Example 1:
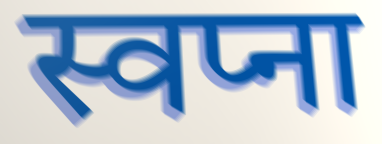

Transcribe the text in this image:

स्‍वप्‍ना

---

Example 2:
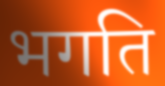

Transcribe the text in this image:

भगति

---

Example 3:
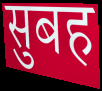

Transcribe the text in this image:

सुबह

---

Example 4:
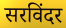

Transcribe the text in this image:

सरविंदर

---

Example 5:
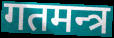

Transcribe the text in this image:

गतमन्त्र